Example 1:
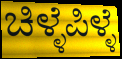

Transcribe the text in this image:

ಚಿಳ್ಳೆಪಿಳ್ಳೆ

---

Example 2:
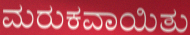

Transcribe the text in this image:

ಮರುಕವಾಯಿತು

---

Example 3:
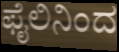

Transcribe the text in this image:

ಫೈಲಿನಿಂದ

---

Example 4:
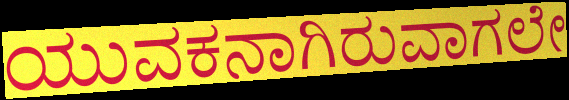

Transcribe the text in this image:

ಯುವಕನಾಗಿರುವಾಗಲೇ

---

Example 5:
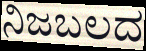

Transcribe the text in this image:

ನಿಜಬಲದ